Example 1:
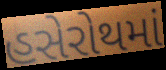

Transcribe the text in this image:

હસેરોથમાં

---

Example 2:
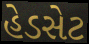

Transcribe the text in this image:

હેડસેટ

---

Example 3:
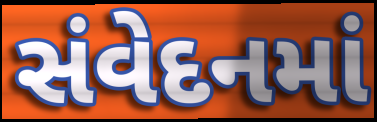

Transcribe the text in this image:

સંવેદનમાં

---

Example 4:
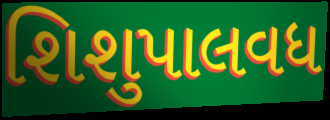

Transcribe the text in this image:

શિશુપાલવધ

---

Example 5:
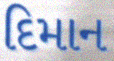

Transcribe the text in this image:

દિમાન